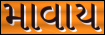
માવાય